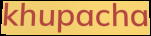
khupacha